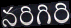
నరిగిరి